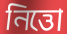
নিত্তো